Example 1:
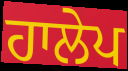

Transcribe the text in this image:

ਹਾਲੇਪ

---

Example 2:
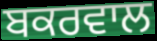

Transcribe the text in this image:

ਬਕਰਵਾਲ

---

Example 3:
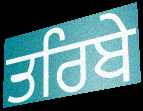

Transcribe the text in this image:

ਤਰਿਬੇ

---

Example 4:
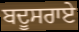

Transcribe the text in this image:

ਬਦੂਸਰਾਏ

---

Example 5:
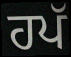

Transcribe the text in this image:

ਹਪੱ